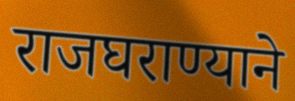
राजघराण्याने